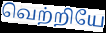
வெற்றியே